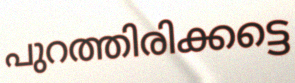
പുറത്തിരിക്കട്ടെ